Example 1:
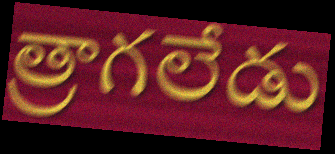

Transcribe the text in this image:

త్రాగలేడు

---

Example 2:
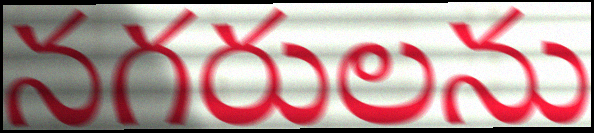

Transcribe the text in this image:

నగరులను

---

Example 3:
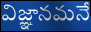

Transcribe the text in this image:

విజ్ఞానమనే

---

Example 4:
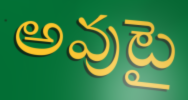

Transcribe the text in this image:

అవుటై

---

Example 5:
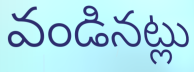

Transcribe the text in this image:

వండినట్లు